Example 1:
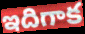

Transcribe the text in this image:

ఇదిగాక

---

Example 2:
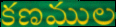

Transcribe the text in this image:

కణముల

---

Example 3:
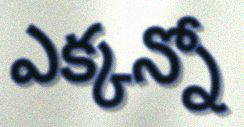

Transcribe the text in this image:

ఎక్కన్నో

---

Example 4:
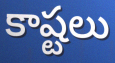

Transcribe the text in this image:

కాష్టలు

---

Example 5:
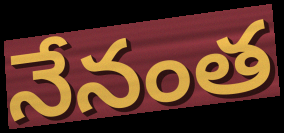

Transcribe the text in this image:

నేనంత